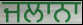
ਜਲਾਨਾ